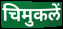
चिमुकलें